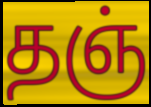
தஞ்